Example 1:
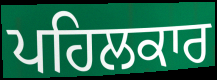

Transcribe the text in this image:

ਪਹਿਲਕਾਰ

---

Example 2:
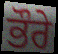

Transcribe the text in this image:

ਭੌਰੇ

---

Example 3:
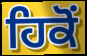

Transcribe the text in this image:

ਹਿਕੋਂ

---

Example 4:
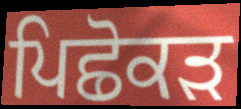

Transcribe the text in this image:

ਪਿਛੋਕੜ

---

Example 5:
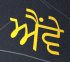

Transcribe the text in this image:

ਐਂਵੇ